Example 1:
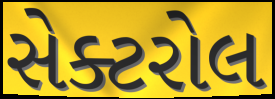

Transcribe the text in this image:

સેક્ટરોલ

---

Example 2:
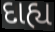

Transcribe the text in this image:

દાહ્ય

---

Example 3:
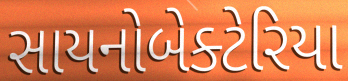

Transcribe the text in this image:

સાયનોબેક્ટેરિયા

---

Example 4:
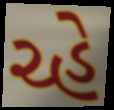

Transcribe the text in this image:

ચ્હે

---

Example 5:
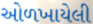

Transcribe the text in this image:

ઓળખાયેલી